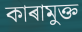
কাৰামুক্ত